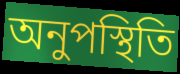
অনুপস্থিতি